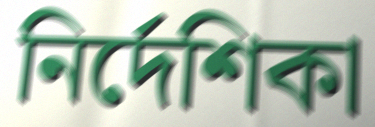
নিৰ্দেশিকা